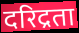
दरिद्रता